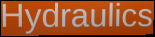
Hydraulics